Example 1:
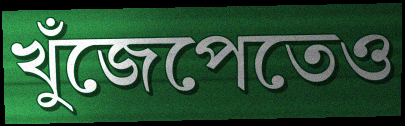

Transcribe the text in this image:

খুঁজেপেতেও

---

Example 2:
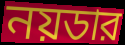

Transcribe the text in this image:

নয়ডার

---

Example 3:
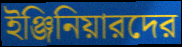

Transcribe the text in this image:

ইঞ্জিনিয়ারদের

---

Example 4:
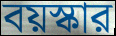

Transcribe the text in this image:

বয়স্কার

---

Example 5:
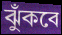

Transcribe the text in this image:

ঝুঁকবে